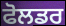
ਫੋਲਡਰ